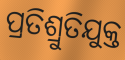
ପ୍ରତିଶ୍ରୁତିଯୁକ୍ତ